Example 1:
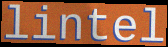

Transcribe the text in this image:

lintel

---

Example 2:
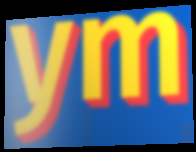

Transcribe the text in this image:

ym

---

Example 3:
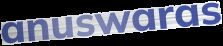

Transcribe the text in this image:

anuswaras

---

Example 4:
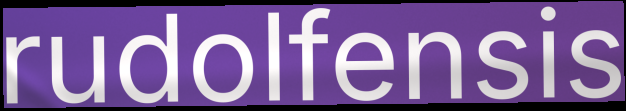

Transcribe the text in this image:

rudolfensis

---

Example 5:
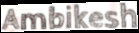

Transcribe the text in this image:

Ambikesh